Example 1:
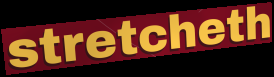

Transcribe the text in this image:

stretcheth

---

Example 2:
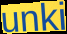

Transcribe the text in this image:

unki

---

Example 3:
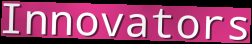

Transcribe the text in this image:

Innovators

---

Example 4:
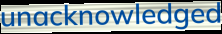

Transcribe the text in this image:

unacknowledged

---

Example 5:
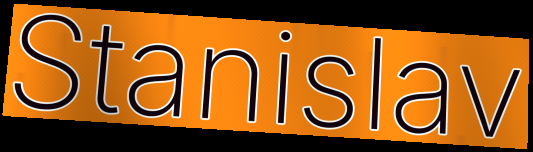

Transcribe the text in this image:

Stanislav